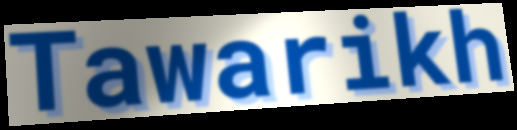
Tawarikh